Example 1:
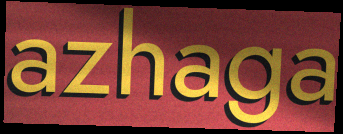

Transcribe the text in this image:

azhaga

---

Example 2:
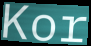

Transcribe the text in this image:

Kor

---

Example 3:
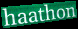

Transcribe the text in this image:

haathon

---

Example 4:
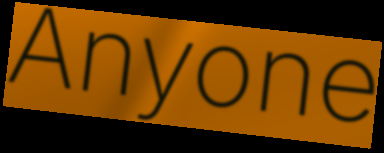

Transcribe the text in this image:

Anyone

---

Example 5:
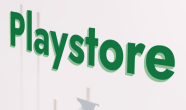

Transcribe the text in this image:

Playstore